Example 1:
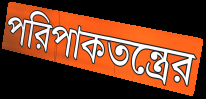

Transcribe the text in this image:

পরিপাকতন্ত্রের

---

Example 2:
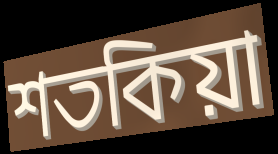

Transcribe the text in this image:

শতকিয়া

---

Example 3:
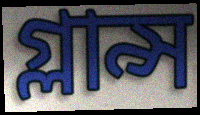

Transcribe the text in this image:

গ্লান্স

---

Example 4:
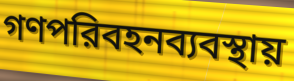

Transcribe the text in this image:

গণপরিবহনব্যবস্থায়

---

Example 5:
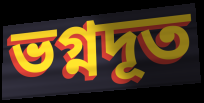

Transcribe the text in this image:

ভগ্নদূত